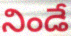
నిండే